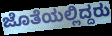
ಜೊತೆಯಲ್ಲಿದ್ದರು